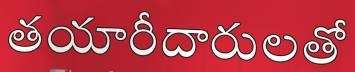
తయారీదారులతో